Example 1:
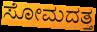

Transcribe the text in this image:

ಸೋಮದತ್ತ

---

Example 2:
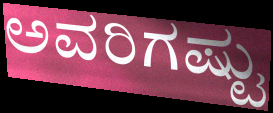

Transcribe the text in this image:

ಅವರಿಗಷ್ಟು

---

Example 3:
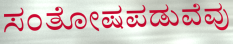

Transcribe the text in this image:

ಸಂತೋಷಪಡುವೆವು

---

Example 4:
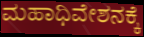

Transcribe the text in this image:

ಮಹಾಧಿವೇಶನಕ್ಕೆ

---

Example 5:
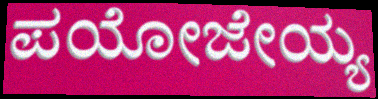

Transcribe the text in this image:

ಪಯೋಜೇಯ್ಯ